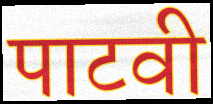
पाटवी